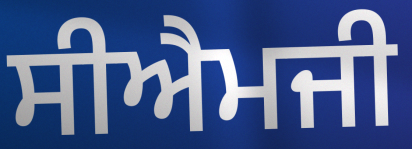
ਸੀਐਮਜੀ